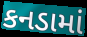
કનડામાં